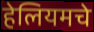
हेलियमचे